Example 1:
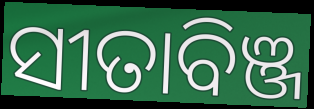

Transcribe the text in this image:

ସୀତାବିଞ୍ଜ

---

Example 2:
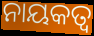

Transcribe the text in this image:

ନାୟକତ୍ୱ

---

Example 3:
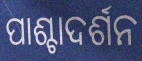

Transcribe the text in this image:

ପାଶ୍ଚାଦର୍ଶନ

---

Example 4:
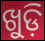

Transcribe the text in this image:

ଖୁଡ଼ି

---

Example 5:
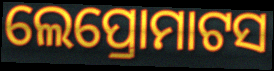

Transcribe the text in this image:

ଲେପ୍ରୋମାଟସ